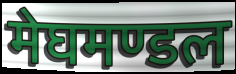
मेघमण्डल